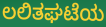
ಲಲಿತಘಟೆಯ